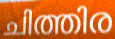
ചിത്തിര